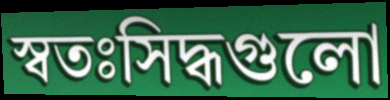
স্বতঃসিদ্ধগুলো